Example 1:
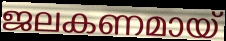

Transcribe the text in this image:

ജലകണമായ്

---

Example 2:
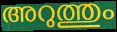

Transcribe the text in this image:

അറുത്തും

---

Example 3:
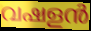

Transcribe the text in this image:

വഷളൻ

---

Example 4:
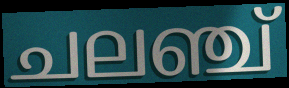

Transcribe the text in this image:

ചലഞ്ച്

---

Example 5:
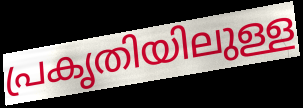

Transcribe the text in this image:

പ്രകൃതിയിലുള്ള